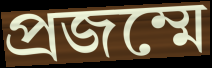
প্রজম্মে